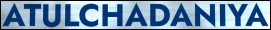
ATULCHADANIYA